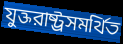
যুক্তরাষ্ট্রসমর্থিত